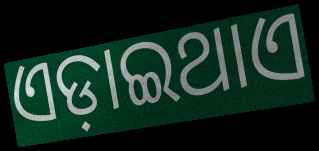
ଏଡ଼ାଇଥାଏ